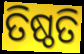
ତିଷ୍ଠତି